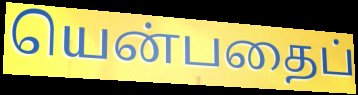
யென்பதைப்